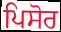
ਪਿਸੋਰ